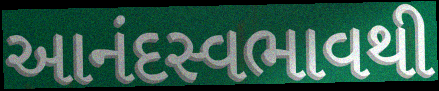
આનંદસ્વભાવથી